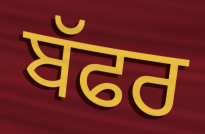
ਬੱਫਰ